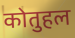
कोतुहल